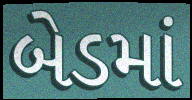
બેડમાં